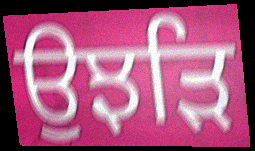
ਉਝੜਿ